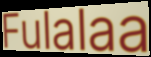
Fulalaa